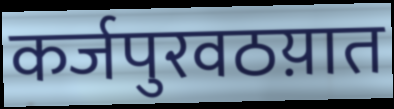
कर्जपुरवठय़ात